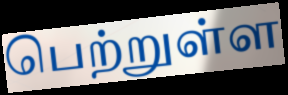
பெற்றுள்ள